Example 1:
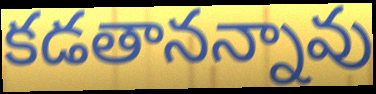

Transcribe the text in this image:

కడతానన్నావు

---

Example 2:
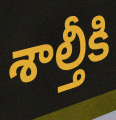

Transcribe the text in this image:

శాల్తీకి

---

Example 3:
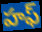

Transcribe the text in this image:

హఫ్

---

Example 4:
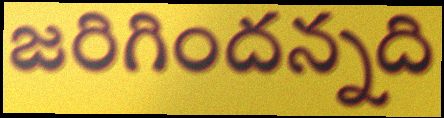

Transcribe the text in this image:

జరిగిందన్నది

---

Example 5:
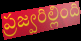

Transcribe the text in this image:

ప్రజ్వరిల్లింది